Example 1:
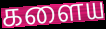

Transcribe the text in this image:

களைய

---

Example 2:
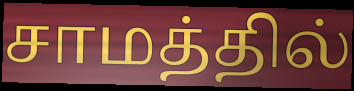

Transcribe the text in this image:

சாமத்தில்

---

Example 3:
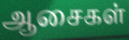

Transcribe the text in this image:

ஆசைகள்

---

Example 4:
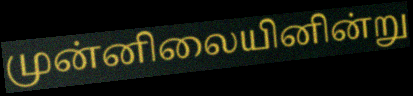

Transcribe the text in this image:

முன்னிலையினின்று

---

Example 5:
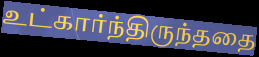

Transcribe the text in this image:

உட்கார்ந்திருந்ததை